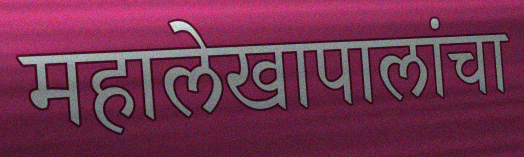
महालेखापालांचा